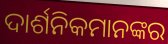
ଦାର୍ଶନିକମାନଙ୍କର